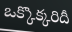
ఒక్కొక్కరిదీ